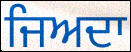
ਜਿਅਦਾ